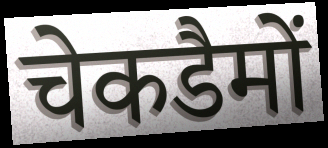
चेकडैमों